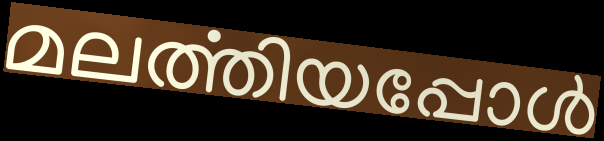
മലൎത്തിയപ്പോൾ